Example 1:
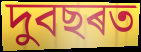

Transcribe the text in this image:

দুবছৰত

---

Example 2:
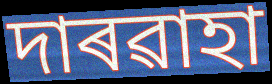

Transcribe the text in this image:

দাৰৱাহা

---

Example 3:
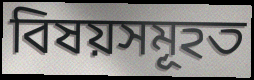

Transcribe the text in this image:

বিষয়সমূহত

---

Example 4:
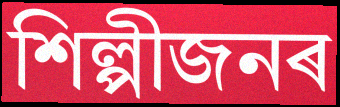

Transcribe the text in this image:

শিল্পীজনৰ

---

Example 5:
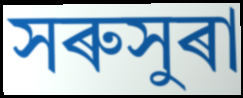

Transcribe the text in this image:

সৰুসুৰা